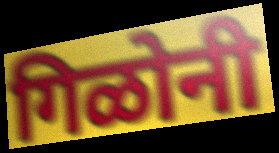
गिळोनी